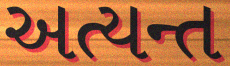
અત્યન્ત